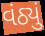
વંઠ્યું